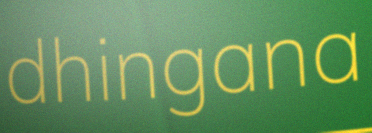
dhingana